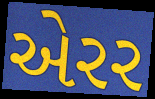
એરર